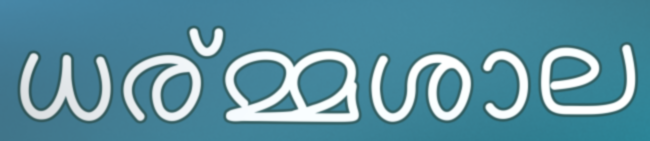
ധര്മ്മശാല